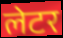
लेटर